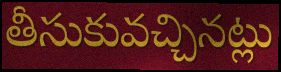
తీసుకువచ్చినట్లు